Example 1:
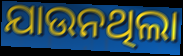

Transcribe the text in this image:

ଯାଉନଥିଲା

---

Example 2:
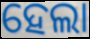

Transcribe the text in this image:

ହେଲା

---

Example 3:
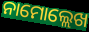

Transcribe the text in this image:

ନାମୋଲ୍ଲେଖ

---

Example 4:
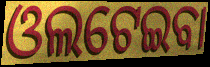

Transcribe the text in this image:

ଓଲଟେଇବା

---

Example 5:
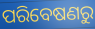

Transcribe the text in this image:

ପରିବେଷଣରୁ